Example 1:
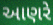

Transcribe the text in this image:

આણરે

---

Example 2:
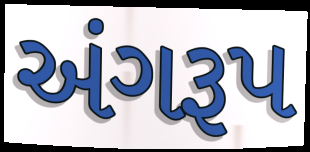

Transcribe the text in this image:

અંગરૂપ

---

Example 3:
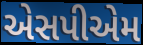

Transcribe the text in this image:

એસપીએમ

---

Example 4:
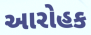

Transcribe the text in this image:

આરોહક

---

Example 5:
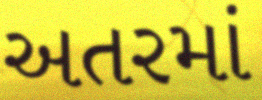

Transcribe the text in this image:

અતરમાં